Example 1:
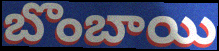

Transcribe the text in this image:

బొంబాయి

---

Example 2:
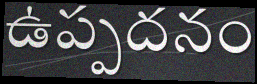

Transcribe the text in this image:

ఉప్పదనం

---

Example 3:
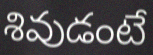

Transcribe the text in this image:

శివుడంటే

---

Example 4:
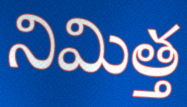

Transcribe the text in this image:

నిమిత్త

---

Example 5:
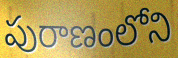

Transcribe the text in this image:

పురాణంలోని